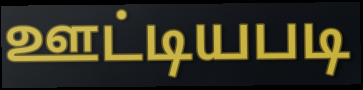
ஊட்டியபடி